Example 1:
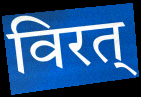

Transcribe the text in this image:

विरत्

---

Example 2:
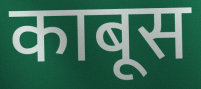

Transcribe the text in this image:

काबूस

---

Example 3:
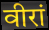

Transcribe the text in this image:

वीरां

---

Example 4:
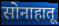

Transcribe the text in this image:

सोनाहातू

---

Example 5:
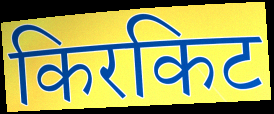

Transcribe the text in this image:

किरकिट